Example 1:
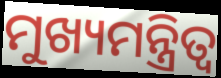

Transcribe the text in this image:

ମୁଖ୍ୟମନ୍ତ୍ରିତ୍ବ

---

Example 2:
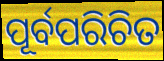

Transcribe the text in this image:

ପୂର୍ବପରିଚିତ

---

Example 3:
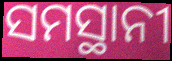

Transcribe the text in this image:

ସମସ୍ଥାନୀ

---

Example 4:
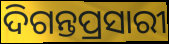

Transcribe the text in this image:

ଦିଗନ୍ତପ୍ରସାରୀ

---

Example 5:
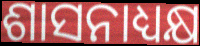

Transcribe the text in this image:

ଶାସନାଧ୍ୟକ୍ଷ